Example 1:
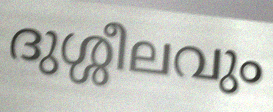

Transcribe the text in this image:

ദുശ്ശീലവും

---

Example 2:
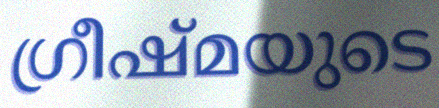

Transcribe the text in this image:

ഗ്രീഷ്മയുടെ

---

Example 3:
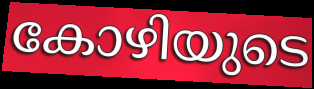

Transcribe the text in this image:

കോഴിയുടെ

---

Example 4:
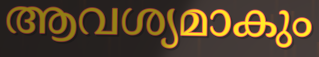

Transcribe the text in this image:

ആവശ്യമാകും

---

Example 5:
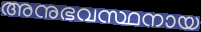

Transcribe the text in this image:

അനുഭവസ്ഥനായ